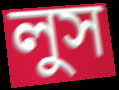
লুস